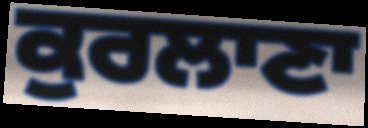
ਕੁਰਲਾਣਾ